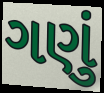
ગણું